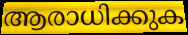
ആരാധിക്കുക